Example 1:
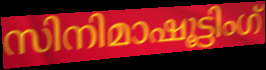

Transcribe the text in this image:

സിനിമാഷൂട്ടിംഗ്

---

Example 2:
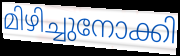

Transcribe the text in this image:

മിഴിച്ചുനോക്കി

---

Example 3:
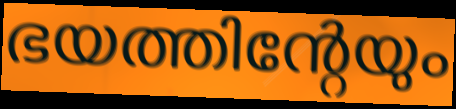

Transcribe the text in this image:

ഭയത്തിന്റേയും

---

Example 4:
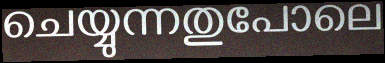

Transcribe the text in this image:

ചെയ്യുന്നതുപോലെ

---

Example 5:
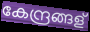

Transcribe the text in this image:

കേന്ദ്രങ്ങള്